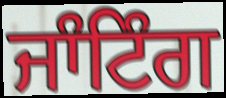
ਜਾੰਟਿੰਗ